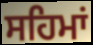
ਸਹਿਮਾਂ